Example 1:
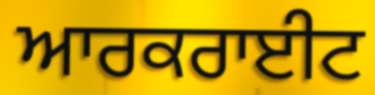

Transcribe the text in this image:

ਆਰਕਰਾਈਟ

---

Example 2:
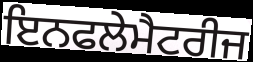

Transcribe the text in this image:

ਇਨਫਲੇਮੈਟਰੀਜ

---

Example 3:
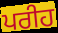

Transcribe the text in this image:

ਪਰੀਹ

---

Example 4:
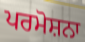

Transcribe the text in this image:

ਪਰਮੋਸ਼ਨਾ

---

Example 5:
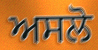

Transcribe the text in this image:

ਅਸਲੋ